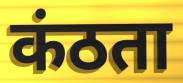
कंठता